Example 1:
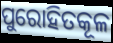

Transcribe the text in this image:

ପୁରୋହିତକୂଳ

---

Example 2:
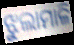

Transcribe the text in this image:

ଝୁଲାମାଳି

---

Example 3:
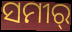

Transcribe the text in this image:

ସମୀର୍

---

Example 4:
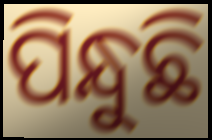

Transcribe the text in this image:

ପିନ୍ଧୁଛି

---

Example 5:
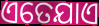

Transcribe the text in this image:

ଏତେଯାଏ